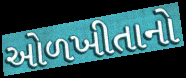
ઓળખીતાનો